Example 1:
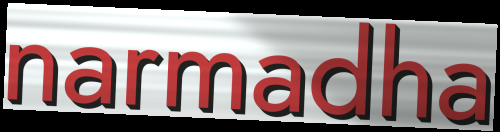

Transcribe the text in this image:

narmadha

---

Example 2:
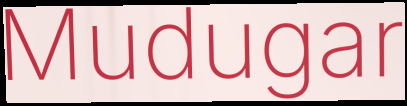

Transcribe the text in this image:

Mudugar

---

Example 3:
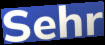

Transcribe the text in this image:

Sehr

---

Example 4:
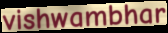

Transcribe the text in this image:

vishwambhar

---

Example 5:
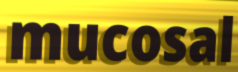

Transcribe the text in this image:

mucosal